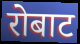
रोबाट